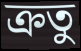
ক্রতু